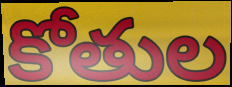
కోతుల